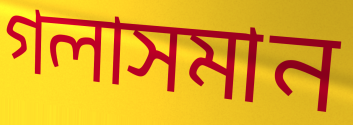
গলাসমান